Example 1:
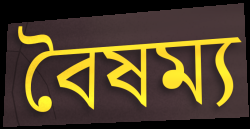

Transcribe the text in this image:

বৈষম্য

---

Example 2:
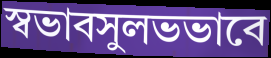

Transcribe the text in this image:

স্বভাবসুলভভাবে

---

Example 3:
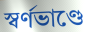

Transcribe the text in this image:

স্বর্ণভাণ্ডে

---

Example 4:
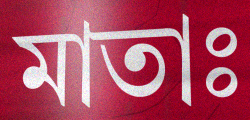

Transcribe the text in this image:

মাতাঃ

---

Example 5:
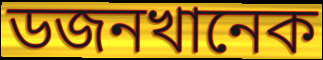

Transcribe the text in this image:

ডজনখানেক